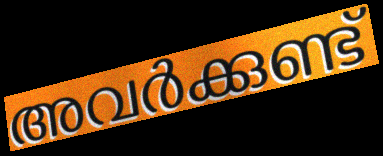
അവർക്കുണ്ട്